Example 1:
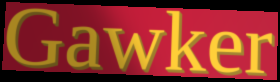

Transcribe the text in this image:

Gawker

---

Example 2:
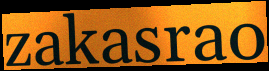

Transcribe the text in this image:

zakasrao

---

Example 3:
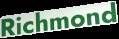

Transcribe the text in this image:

Richmond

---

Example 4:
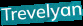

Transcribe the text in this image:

Trevelyan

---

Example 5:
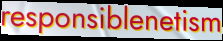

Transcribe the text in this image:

responsiblenetism